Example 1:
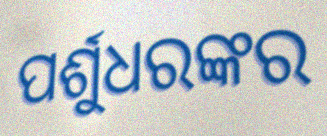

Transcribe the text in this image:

ପର୍ଶୁଧରଙ୍କର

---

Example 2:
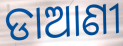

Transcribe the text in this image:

ଡାଆଣୀ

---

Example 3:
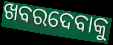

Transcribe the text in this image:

ଖବରଦେବାକୁ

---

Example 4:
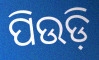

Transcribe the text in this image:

ପିଉଡ଼ି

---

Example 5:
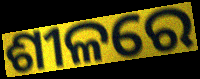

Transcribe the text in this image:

ଶୀଳରେ